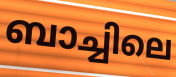
ബാച്ചിലെ